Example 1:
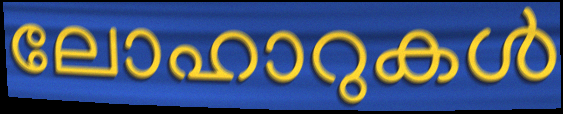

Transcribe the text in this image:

ലോഹാറുകൾ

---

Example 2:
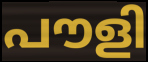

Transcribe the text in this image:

പൗളി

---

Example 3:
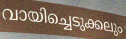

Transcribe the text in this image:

വായിച്ചെടുക്കലും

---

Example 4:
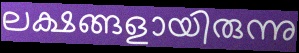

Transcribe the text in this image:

ലക്ഷങ്ങളായിരുന്നു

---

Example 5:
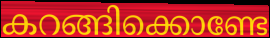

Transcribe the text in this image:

കറങ്ങിക്കൊണ്ടേ